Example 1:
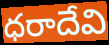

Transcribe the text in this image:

ధరాదేవి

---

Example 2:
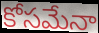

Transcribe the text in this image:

కోసమేనా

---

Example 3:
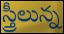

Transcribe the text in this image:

స్త్రీలున్న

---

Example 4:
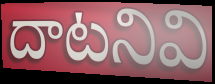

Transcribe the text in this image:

దాటనివి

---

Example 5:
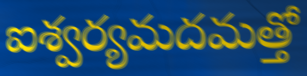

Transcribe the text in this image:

ఐశ్వర్యమదమత్తో